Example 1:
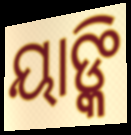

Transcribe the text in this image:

ୟାଙ୍କି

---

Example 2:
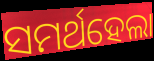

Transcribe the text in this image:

ସମର୍ଥହେଲା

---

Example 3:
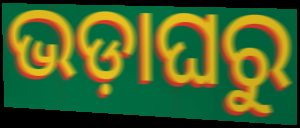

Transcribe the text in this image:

ଭଡ଼ାଘରୁ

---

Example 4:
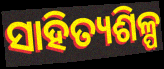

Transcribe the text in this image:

ସାହିତ୍ୟଶିଳ୍ପ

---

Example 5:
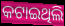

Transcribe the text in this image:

କଟାଇଥିଲି